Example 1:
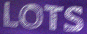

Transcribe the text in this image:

LOTS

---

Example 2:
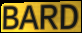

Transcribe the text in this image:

BARD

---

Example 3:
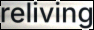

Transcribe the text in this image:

reliving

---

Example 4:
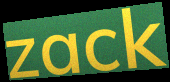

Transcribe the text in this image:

zack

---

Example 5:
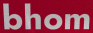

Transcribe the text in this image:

bhom